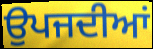
ਉਪਜਦੀਆਂ